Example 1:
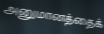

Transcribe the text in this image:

அனுமானத்தைக்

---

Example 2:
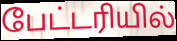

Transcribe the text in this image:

பேட்டரியில்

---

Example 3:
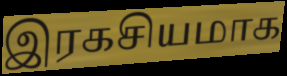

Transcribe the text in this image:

இரகசியமாக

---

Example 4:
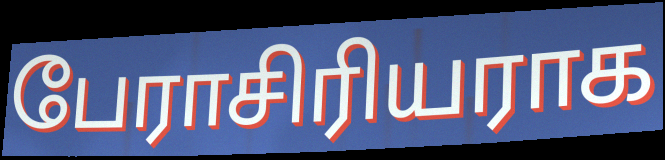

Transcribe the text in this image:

பேராசிரியராக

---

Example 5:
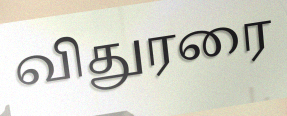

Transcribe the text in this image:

விதுரரை